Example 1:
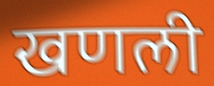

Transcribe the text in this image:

खणली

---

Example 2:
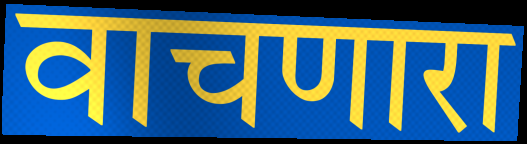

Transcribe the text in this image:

वाचणारा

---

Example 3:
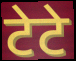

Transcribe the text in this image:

टेटे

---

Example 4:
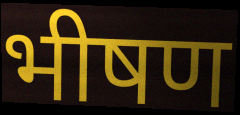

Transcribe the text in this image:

भीषण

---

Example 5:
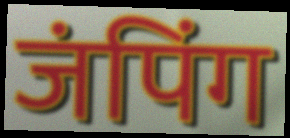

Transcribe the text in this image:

जंपिंग